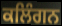
ਕਲਿੰਗਨ